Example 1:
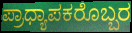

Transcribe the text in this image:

ಪ್ರಾಧ್ಯಾಪಕರೊಬ್ಬರ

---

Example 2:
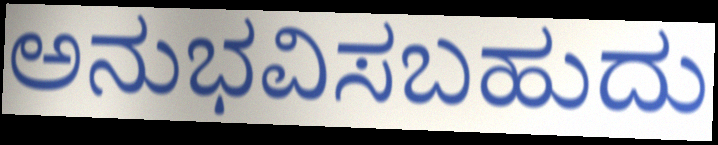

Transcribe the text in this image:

ಅನುಭವಿಸಬಹುದು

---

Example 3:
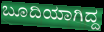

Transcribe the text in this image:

ಬೂದಿಯಾಗಿದ್ದ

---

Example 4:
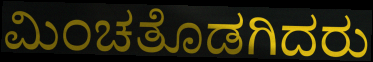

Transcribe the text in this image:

ಮಿಂಚತೊಡಗಿದರು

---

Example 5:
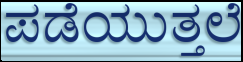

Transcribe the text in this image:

ಪಡೆಯುತ್ತಲೆ